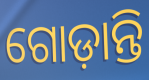
ଗୋଡ଼ାନ୍ତି